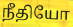
நீதியோ